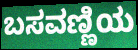
ಬಸವಣ್ಣಿಯ